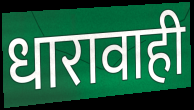
धारावाही